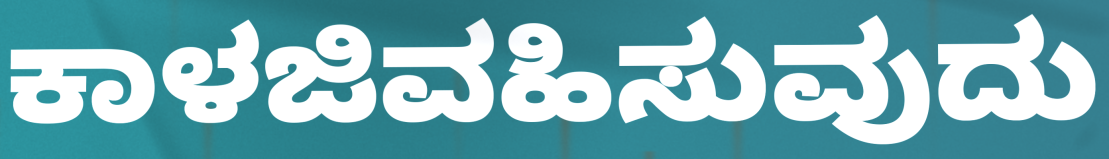
ಕಾಳಜಿವಹಿಸುವುದು